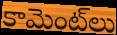
కామెంట్‌లు